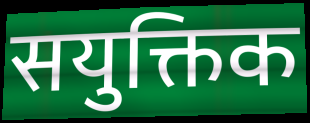
सयुक्तिक